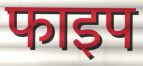
फाइप